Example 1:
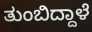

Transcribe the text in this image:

ತುಂಬಿದ್ದಾಳೆ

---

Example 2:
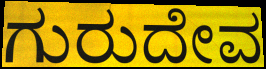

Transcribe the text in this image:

ಗುರುದೇವ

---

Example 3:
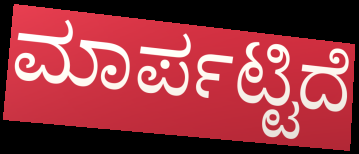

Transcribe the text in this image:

ಮಾರ್ಪಟ್ಟಿದೆ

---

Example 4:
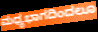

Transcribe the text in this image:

ಮಧ್ಯಭಾಗದಿಂದಲೂ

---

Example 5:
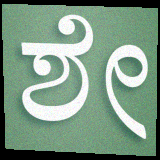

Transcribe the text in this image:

ಶೇ